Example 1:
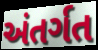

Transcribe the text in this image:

અંતર્ગત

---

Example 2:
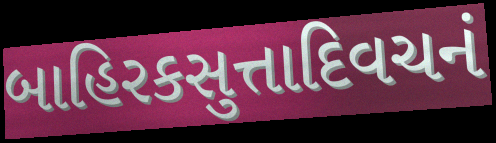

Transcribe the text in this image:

બાહિરકસુત્તાદિવચનં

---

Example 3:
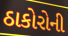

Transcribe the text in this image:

ઠાકોરોની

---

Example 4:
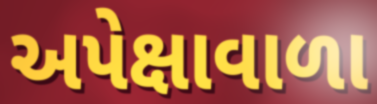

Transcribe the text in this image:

અપેક્ષાવાળા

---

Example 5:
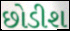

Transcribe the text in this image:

છોડીશ